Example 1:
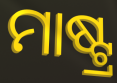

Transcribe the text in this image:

ମାଷ୍ଟ୍ର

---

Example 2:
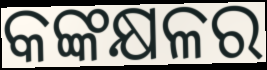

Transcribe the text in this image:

କଙ୍କକ୍ଷଳର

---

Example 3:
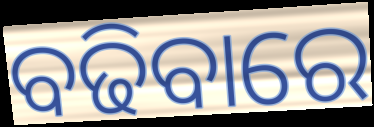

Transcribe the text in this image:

ବଢିବାରେ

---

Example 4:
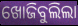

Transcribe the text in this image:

ଖୋଜିବୁଲିଲା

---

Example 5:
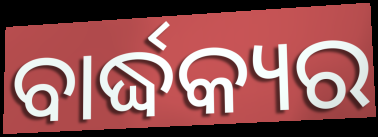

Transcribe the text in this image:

ବାର୍ଦ୍ଧକ୍ୟର